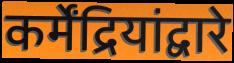
कर्मेंद्रियांद्वारे